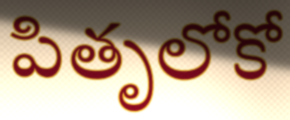
పితృలోకో